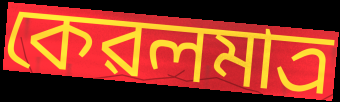
কেৱলমাত্ৰ